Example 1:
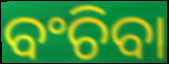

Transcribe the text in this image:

ବଂଚିବା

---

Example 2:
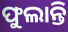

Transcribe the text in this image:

ଫୁଲାନ୍ତି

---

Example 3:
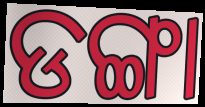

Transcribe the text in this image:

ଡଙ୍ଗା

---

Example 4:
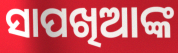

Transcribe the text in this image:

ସାପଖିଆଙ୍କ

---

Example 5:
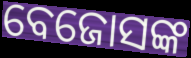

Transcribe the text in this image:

ବେଜୋସଙ୍କ